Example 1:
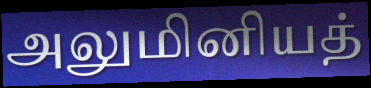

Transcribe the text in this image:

அலுமினியத்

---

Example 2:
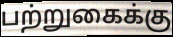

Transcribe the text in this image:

பற்றுகைக்கு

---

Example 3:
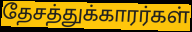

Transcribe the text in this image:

தேசத்துக்காரர்கள்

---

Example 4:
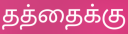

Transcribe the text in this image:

தத்தைக்கு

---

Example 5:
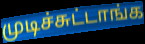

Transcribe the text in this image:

முடிச்சுட்டாங்க